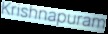
Krishnapuram